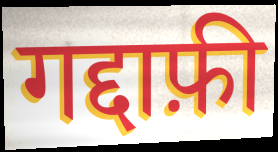
गद्दाफ़ी